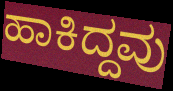
ಹಾಕಿದ್ದವು